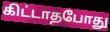
கிட்டாதபோது